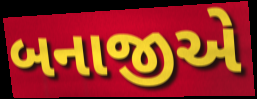
બનાજીએ